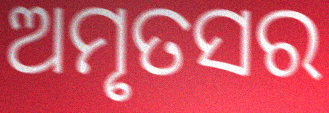
ଅମୃତସର